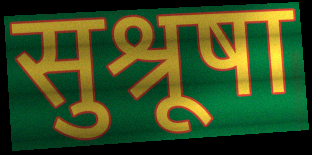
सुश्रूषा